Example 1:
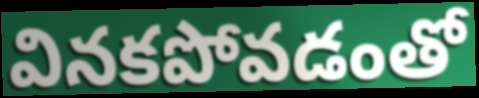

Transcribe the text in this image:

వినకపోవడంతో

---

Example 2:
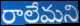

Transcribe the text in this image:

రాలేమని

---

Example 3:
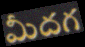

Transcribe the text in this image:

మీదగ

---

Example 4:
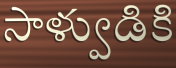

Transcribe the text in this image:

సాళ్వుడికి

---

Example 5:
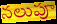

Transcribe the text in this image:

నలుపూ